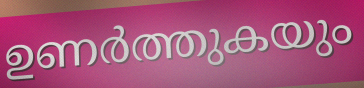
ഉണർത്തുകയും